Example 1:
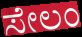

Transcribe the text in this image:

ಸೇಲಂ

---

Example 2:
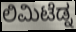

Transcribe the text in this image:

ಲಿಮಿಟೆಡ್ನ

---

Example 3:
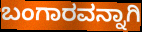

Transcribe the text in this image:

ಬಂಗಾರವನ್ನಾಗಿ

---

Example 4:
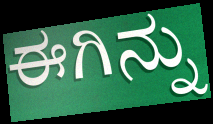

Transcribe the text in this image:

ಈಗಿನ್ನು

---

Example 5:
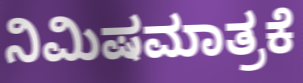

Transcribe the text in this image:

ನಿಮಿಷಮಾತ್ರಕೆ